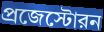
প্রজেস্টোরন